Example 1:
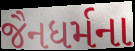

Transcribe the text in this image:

જૈનધર્મના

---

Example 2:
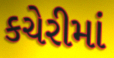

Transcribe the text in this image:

કચેરીમાં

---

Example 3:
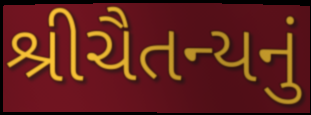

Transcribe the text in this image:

શ્રીચૈતન્યનું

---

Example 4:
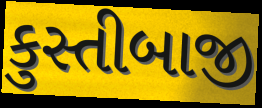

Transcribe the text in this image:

કુસ્તીબાજી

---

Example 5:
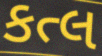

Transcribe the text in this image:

કત્લ